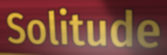
Solitude